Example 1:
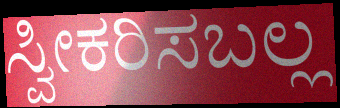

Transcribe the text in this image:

ಸ್ವೀಕರಿಸಬಲ್ಲ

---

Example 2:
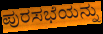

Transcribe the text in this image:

ಪುರಸಭೆಯನ್ನು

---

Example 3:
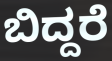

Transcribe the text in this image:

ಬಿದ್ದರೆ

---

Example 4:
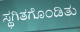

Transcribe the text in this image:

ಸ್ಥಗಿತಗೊಂಡಿತು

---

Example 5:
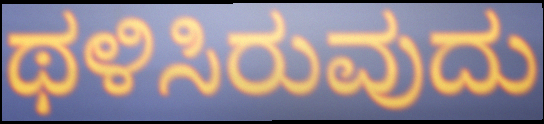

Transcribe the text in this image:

ಥಳಿಸಿರುವುದು